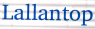
Lallantop